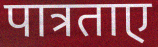
पात्रताए